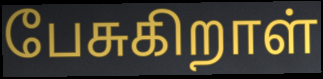
பேசுகிறாள்